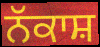
ਨੱਕਾਸ਼